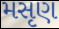
મસૃણ